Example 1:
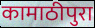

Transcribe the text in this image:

कामाठीपुरा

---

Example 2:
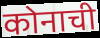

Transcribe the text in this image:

कोनाची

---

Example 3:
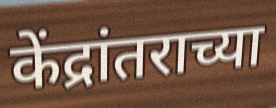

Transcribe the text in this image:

केंद्रांतराच्या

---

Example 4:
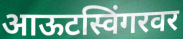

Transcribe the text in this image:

आऊटस्विंगरवर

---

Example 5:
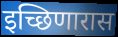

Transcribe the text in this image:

इच्छिणारास